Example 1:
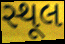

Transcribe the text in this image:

સ્થૂલ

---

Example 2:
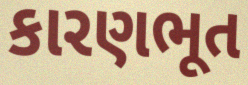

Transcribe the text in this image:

કારણભૂત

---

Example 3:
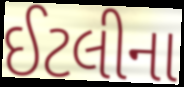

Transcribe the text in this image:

ઈટલીના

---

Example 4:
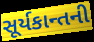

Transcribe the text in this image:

સૂર્યકાન્તની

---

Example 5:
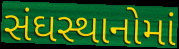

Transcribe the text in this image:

સંઘસ્થાનોમાં